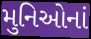
મુનિઓનાં